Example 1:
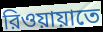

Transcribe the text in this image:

রিওয়ায়াতে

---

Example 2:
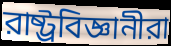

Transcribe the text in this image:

রাষ্ট্রবিজ্ঞানীরা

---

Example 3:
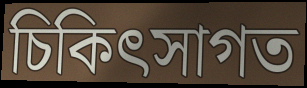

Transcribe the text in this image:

চিকিৎসাগত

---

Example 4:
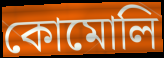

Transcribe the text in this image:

কোমোলি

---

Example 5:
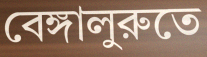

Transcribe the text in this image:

বেঙ্গালুরুতে